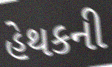
હેથકની